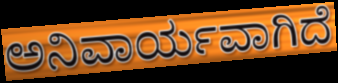
ಅನಿವಾರ್ಯವಾಗಿದೆ